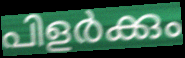
പിളർക്കും